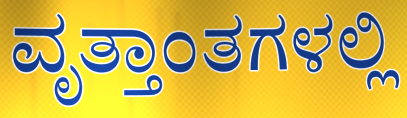
ವೃತ್ತಾಂತಗಳಲ್ಲಿ